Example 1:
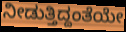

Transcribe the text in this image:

ನೀಡುತ್ತಿದ್ದಂತೆಯೇ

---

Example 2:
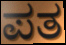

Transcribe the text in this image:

ಪತ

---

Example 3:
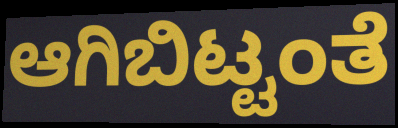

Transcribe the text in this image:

ಆಗಿಬಿಟ್ಟಂತೆ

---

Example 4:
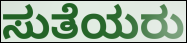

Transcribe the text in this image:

ಸುತೆಯರು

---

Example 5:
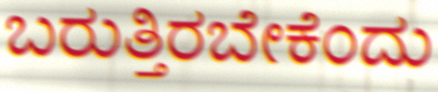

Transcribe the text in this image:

ಬರುತ್ತಿರಬೇಕೆಂದು